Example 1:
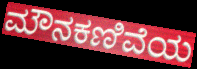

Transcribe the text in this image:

ಮೌನಕಣಿವೆಯ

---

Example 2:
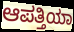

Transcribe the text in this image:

ಆಪತ್ತಿಯಾ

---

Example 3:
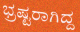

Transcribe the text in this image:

ಭ್ರಷ್ಟರಾಗಿದ್ದ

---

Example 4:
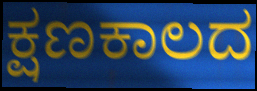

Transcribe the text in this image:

ಕ್ಷಣಕಾಲದ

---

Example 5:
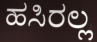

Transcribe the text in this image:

ಹಸಿರಲ್ಲ